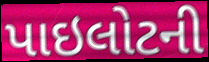
પાઇલોટની